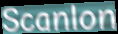
Scanlon